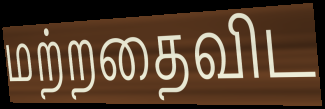
மற்றதைவிட